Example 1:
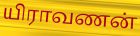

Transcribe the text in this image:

யிராவணன்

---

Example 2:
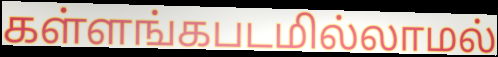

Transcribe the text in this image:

கள்ளங்கபடமில்லாமல்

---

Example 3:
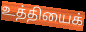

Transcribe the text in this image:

உத்தியைக்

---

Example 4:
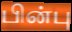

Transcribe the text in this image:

பின்பு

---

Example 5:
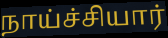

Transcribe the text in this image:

நாய்ச்சியார்